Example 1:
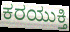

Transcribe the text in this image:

ಕರಯುಕ್ತಿ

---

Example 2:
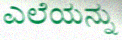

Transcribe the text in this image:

ಎಲೆಯನ್ನು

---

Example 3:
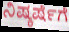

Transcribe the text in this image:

ನಿಷ್ಕರ್ಷೆಗೆ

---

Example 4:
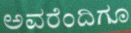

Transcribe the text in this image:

ಅವರೆಂದಿಗೂ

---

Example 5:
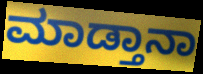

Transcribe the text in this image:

ಮಾಡ್ತಾನಾ